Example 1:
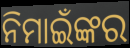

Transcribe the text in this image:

ନିମାଇଁଙ୍କର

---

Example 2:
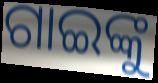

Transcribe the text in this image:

ଗାଇଙ୍କୁ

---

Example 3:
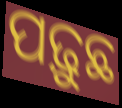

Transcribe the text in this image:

ପଢ଼ୁଛ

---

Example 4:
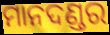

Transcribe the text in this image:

ମାନଦଣ୍ଡର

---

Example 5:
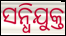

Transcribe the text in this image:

ସନ୍ଧିଯୁକ୍ତ